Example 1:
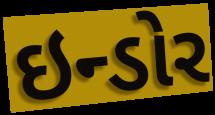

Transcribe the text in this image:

ઇન્ડોર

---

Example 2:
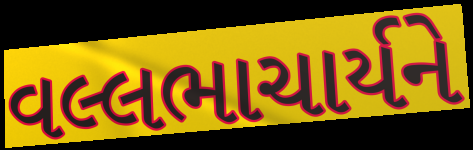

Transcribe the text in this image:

વલ્લભાચાર્યને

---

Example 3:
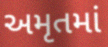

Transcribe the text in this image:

અમૃતમાં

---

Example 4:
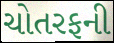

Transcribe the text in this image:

ચોતરફની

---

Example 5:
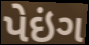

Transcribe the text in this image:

પેઇંગ